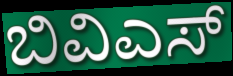
ಬಿವಿಎಸ್